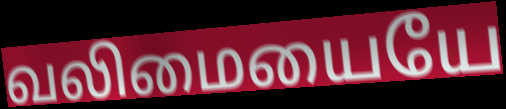
வலிமையையே